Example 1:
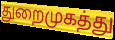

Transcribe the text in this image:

துறைமுகத்து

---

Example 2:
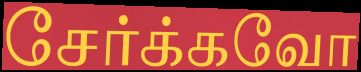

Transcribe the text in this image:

சேர்க்கவோ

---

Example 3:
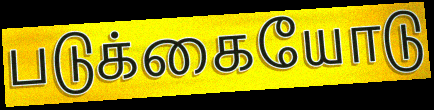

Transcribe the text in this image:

படுக்கையோடு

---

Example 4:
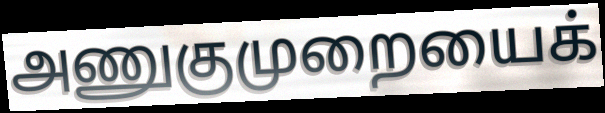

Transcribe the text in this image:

அணுகுமுறையைக்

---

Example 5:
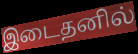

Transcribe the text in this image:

இடைதனில்